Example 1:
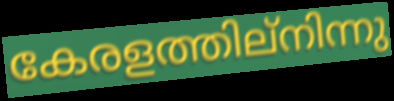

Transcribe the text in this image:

കേരളത്തില്നിന്നു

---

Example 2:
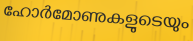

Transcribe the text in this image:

ഹോർമോണുകളുടെയും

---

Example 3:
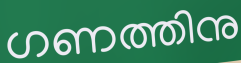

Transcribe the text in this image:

ഗണത്തിനു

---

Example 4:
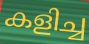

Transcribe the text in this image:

കളിച്ച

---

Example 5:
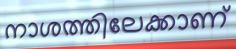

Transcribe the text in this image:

നാശത്തിലേക്കാണ്